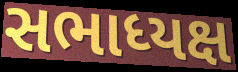
સભાધ્યક્ષ